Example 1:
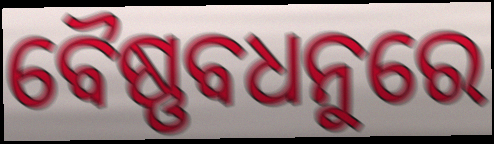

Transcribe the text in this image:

ବୈଷ୍ଣବଧନୁରେ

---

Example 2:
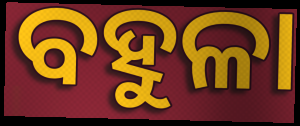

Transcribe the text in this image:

ବହୁଳା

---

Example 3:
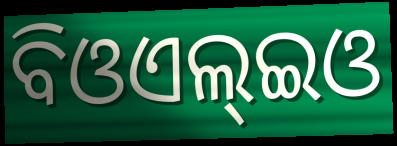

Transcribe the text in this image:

ବିଓଏଲ୍ଇଓ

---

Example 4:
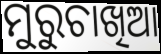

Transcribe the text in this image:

ମୁରୁଚାଖିଆ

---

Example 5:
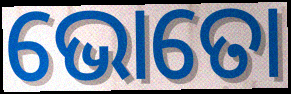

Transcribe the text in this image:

ଭୋତୋ